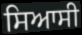
ਸਿਆਸੀ